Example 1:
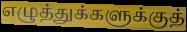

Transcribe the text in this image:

எழுத்துக்களுக்குத்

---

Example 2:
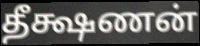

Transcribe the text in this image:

தீக்ஷணன்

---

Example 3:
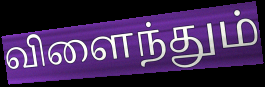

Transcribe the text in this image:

விளைந்தும்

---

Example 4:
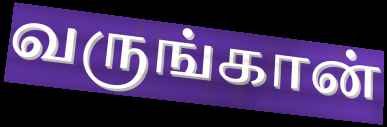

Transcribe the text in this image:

வருங்கான்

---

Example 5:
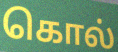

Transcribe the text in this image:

கொல்